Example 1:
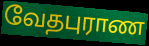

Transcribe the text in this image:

வேதபுராண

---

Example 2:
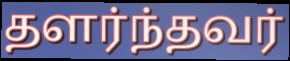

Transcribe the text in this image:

தளர்ந்தவர்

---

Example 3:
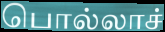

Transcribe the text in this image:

பொல்லாச்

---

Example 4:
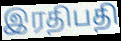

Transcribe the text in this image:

இரதிபதி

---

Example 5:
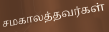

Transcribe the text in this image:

சமகாலத்தவர்கள்